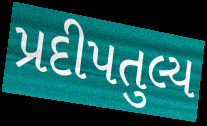
પ્રદીપતુલ્ય